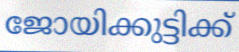
ജോയിക്കുട്ടിക്ക്